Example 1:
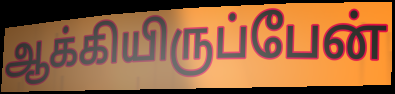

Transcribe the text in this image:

ஆக்கியிருப்பேன்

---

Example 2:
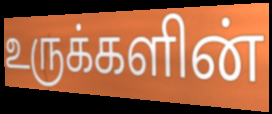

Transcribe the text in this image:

உருக்களின்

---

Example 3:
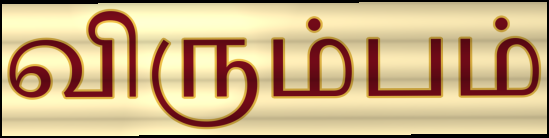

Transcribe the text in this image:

விரும்பம்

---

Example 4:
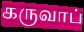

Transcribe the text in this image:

கருவாப்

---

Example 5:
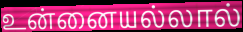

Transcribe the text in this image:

உன்னையல்லால்